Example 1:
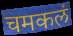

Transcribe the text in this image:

चमकलं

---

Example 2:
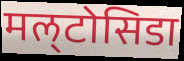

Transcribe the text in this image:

मल्टोसिडा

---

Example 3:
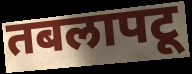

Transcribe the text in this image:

तबलापटू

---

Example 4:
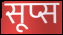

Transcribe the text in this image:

सूप्स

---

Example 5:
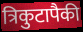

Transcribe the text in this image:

त्रिकुटापैकी